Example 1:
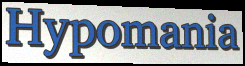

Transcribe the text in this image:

Hypomania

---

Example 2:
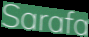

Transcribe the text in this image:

Sarafa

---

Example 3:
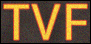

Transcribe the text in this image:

TVF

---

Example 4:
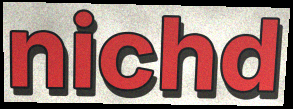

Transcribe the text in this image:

nichd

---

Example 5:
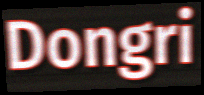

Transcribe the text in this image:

Dongri